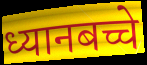
ध्यानबच्चे